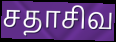
சதாசிவ